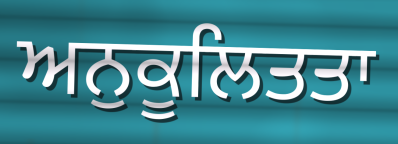
ਅਨੁਕੂਲਿਤਤਾ